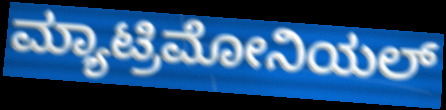
ಮ್ಯಾಟ್ರಿಮೋನಿಯಲ್